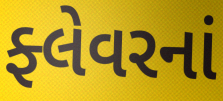
ફ્લેવરનાં